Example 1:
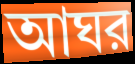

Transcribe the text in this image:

আঘর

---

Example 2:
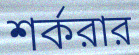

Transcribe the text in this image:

শর্করার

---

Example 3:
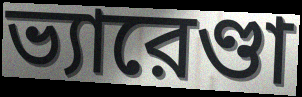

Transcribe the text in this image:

ভ্যারেণ্ডা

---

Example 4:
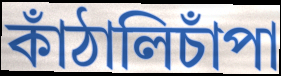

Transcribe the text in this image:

কাঁঠালিচাঁপা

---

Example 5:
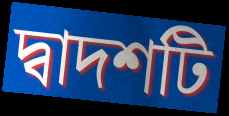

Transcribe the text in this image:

দ্বাদশটি